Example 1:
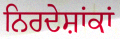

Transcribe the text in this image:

ਨਿਰਦੇਸ਼ਾਂਕਾਂ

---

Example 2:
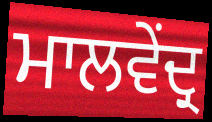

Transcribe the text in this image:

ਮਾਲਵੇਂਦ੍ਰ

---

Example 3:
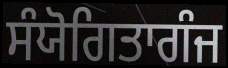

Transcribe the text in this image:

ਸੰਯੋਗਿਤਾਗੰਜ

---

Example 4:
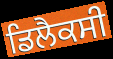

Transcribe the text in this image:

ਡਿਲੈਕਸੀ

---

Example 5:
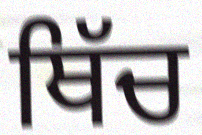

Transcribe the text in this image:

ਥਿੱਚ